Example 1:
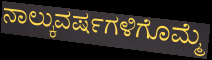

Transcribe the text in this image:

ನಾಲ್ಕುವರ್ಷಗಳಿಗೊಮ್ಮೆ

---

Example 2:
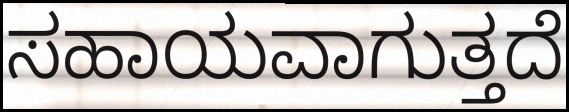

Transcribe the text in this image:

ಸಹಾಯವಾಗುತ್ತದೆ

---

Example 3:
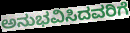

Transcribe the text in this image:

ಅನುಭವಿಸಿದವರಿಗೆ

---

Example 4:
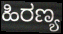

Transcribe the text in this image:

ಹಿರಣ್ಯ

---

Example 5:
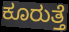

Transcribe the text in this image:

ಕೂರುತ್ತೆ